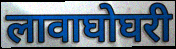
लावाघोघरी